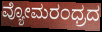
ವ್ಯೋಮರಂಧ್ರದ